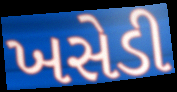
ખસેડી